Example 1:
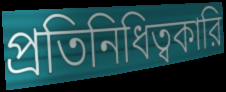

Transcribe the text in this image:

প্রতিনিধিত্বকারি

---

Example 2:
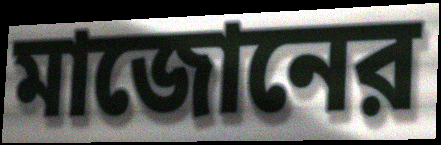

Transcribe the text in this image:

মাজোনের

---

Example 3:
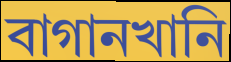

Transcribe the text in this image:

বাগানখানি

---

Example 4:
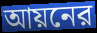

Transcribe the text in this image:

আয়নের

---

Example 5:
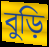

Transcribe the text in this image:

বুড়ি